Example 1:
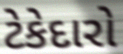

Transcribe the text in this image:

ટેકેદારો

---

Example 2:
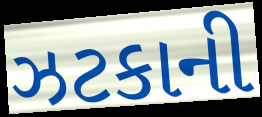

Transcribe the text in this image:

ઝટકાની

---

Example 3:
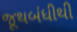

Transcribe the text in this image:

જૂથબંધીથી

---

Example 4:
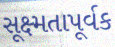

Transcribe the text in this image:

સૂક્ષ્મતાપૂર્વક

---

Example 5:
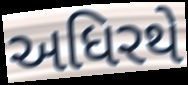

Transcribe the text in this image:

અધિરથે